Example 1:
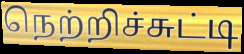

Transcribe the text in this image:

நெற்றிச்சுட்டி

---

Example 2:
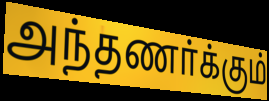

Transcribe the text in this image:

அந்தணர்க்கும்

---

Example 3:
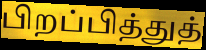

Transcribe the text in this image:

பிறப்பித்துத்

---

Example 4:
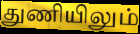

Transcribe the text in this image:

துணியிலும்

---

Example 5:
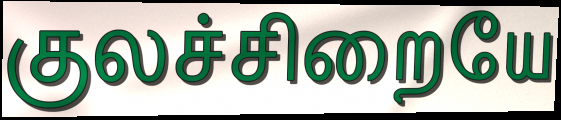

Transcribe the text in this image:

குலச்சிறையே